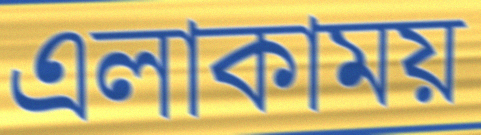
এলাকাময়